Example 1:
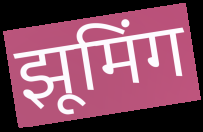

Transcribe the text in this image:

झूमिंग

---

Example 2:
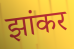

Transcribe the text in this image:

झांकर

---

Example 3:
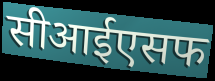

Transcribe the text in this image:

सीआईएसफ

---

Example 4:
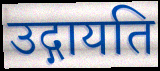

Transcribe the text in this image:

उद्गायति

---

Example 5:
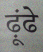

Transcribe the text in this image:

ढ़ूंढे